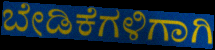
ಬೇಡಿಕೆಗಳಿಗಾಗಿ